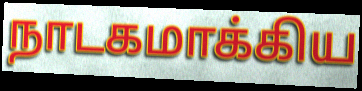
நாடகமாக்கிய